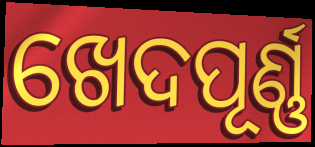
ଖେଦପୂର୍ଣ୍ଣ